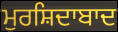
ਮੁਰਸ਼ਿਦਾਬਾਦ